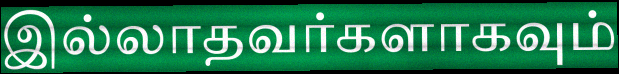
இல்லாதவர்களாகவும்